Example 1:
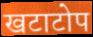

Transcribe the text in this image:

खटाटोप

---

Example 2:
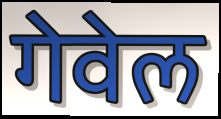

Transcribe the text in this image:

गेवेल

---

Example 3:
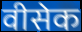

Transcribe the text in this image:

वीसेक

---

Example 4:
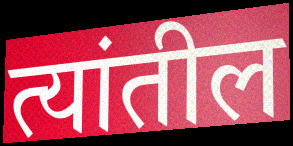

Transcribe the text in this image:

त्‍यांतील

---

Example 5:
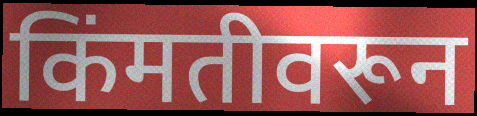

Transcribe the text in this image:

किंमतीवरून